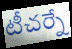
టీచర్నే